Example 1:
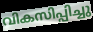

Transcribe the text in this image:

വികസിപ്പിച്ചു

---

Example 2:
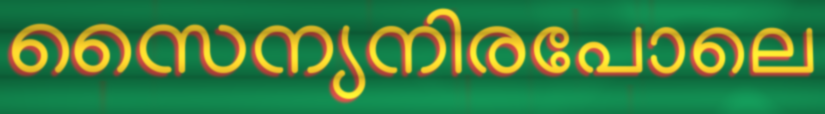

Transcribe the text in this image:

സൈന്യനിരപോലെ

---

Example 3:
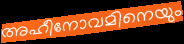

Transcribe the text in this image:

അഹീനോവമിനെയും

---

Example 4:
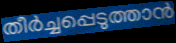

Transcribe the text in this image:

തീർച്ചപ്പെടുത്താൻ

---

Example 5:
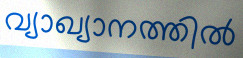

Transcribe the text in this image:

വ്യാഖ്യാനത്തിൽ